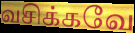
வசிக்கவே